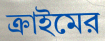
ক্রাইমের